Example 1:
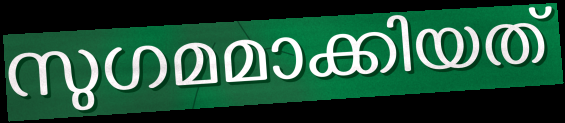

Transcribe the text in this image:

സുഗമമാക്കിയത്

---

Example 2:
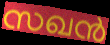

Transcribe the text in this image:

സഖൻ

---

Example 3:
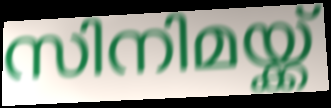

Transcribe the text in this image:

സിനിമയ്ക്ക്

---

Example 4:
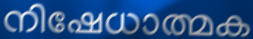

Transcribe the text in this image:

നിഷേധാത്മക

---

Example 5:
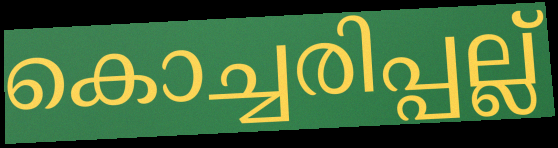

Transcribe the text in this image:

കൊച്ചരിപ്പല്ല്